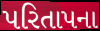
પરિતાપના